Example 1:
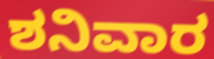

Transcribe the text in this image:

ಶನಿವಾರ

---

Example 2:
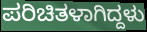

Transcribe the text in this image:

ಪರಿಚಿತಳಾಗಿದ್ದಳು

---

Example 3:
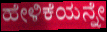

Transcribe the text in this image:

ಹೇಳಿಕೆಯನ್ನೇ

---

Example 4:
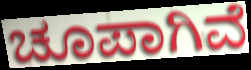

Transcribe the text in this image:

ಚೂಪಾಗಿವೆ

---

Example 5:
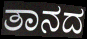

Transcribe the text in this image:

ತಾನದ